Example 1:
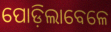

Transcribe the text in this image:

ପୋଡ଼ିଲାବେଳେ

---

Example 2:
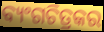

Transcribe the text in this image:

ବ୍ୟଂଗଚିତ୍ରକର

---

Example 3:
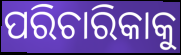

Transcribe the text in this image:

ପରିଚାରିକାକୁ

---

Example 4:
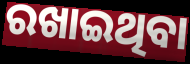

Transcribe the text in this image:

ରଖାଇଥିବା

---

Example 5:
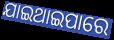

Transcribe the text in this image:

ଯାଇଥାଇପାରେ